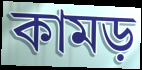
কামড়